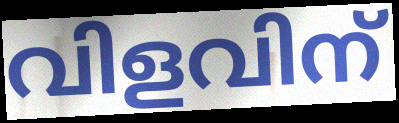
വിളവിന്